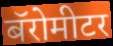
बॅरोमीटर